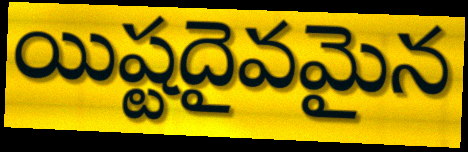
యిష్టదైవమైన